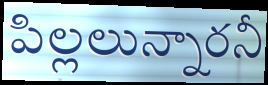
పిల్లలున్నారనీ